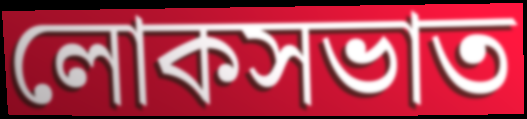
লোকসভাত